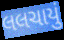
લલચાયું